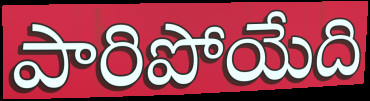
పారిపోయేది